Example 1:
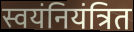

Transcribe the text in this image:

स्वयंनियंत्रित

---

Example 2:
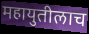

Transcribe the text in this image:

महायुतीलाच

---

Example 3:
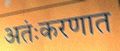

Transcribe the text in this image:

अतंःकरणात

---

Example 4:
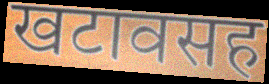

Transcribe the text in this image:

खटावसह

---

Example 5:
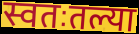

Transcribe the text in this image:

स्वतःतल्या